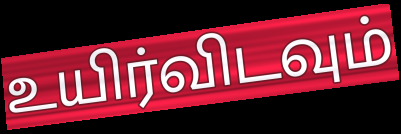
உயிர்விடவும்